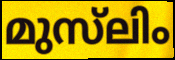
മുസ്‌ലിം